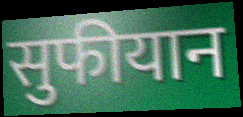
सुफीयान